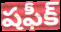
షఫీక్